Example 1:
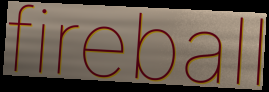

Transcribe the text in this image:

fireball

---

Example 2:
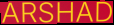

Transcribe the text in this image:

ARSHAD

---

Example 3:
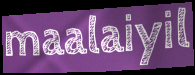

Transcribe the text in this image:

maalaiyil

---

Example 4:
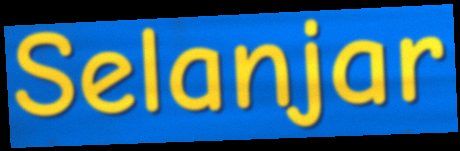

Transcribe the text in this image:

Selanjar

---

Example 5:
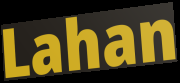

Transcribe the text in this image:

Lahan